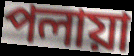
পলায়া